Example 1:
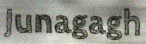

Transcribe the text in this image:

Junagagh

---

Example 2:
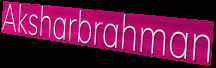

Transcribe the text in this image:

Aksharbrahman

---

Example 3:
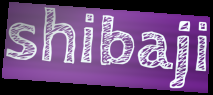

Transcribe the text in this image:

shibaji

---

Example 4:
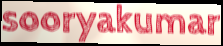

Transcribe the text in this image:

sooryakumar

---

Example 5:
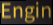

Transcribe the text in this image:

Engin